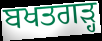
ਬਖਤਗੜ੍ਹ